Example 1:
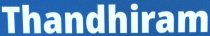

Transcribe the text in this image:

Thandhiram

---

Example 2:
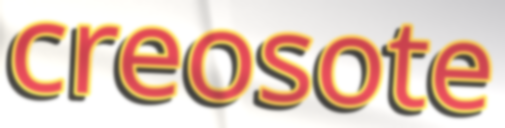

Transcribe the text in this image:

creosote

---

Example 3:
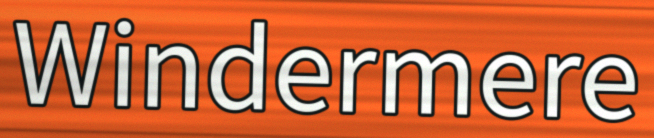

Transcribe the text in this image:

Windermere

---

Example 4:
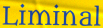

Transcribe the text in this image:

Liminal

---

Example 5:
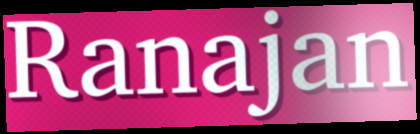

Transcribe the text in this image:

Ranajan